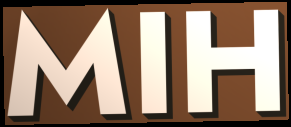
MIH